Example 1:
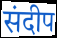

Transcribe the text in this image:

संदीप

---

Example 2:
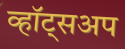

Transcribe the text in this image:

व्हॉट्सअप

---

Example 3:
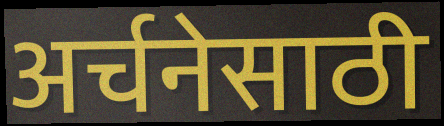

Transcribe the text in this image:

अर्चनेसाठी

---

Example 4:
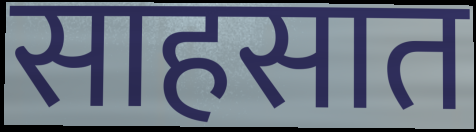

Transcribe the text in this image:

साहसात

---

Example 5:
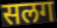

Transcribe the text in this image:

सलग